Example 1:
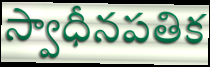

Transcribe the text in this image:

స్వాధీనపతిక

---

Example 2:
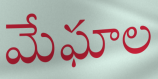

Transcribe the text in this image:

మేఘాల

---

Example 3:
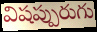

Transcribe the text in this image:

విషప్పురుగు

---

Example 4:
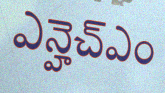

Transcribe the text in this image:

ఎన్హెచ్ఎం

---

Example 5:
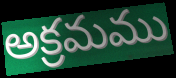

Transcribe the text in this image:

అక్రమము